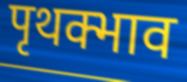
पृथक्भाव